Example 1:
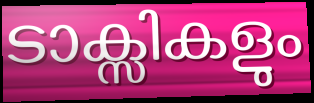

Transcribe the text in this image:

ടാക്സികളും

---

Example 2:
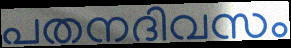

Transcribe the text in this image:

പതനദിവസം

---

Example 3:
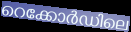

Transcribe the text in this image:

റെക്കോർഡിലെ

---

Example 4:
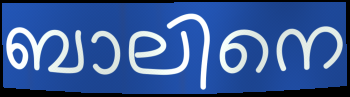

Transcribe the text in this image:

ബാലിനെ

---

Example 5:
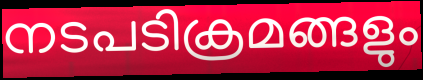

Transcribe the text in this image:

നടപടിക്രമങ്ങളും